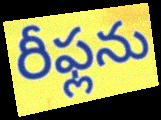
రీఫ్లను